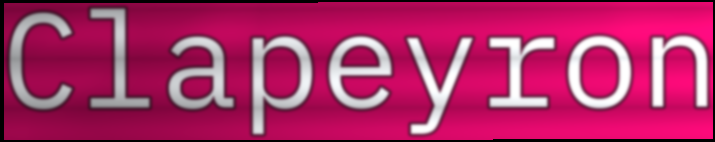
Clapeyron